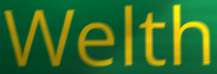
Welth